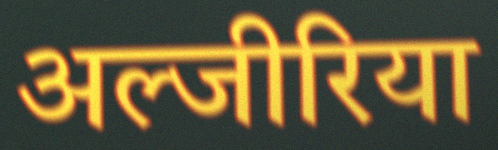
अल्जीरिया